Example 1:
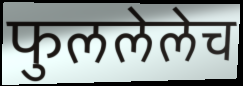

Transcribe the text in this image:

फुललेलेच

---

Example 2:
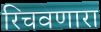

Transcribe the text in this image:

रिचवणारा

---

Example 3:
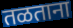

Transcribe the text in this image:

तळताना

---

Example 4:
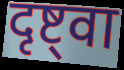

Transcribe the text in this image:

दृष्ट्‍वा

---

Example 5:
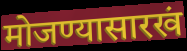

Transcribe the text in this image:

मोजण्यासारखं